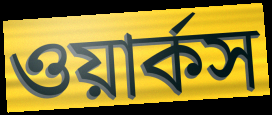
ওয়ার্কস